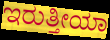
ಇರುತ್ತೀಯಾ